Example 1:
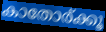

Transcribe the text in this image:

കാതോര്ക്കൂ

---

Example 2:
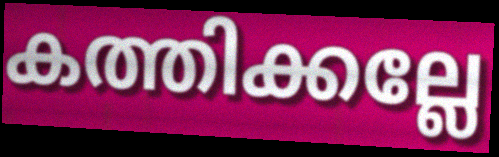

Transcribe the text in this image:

കത്തിക്കല്ലേ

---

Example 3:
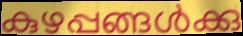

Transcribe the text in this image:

കുഴപ്പങ്ങൾക്കു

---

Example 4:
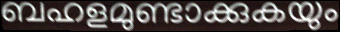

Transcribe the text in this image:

ബഹളമുണ്ടാക്കുകയും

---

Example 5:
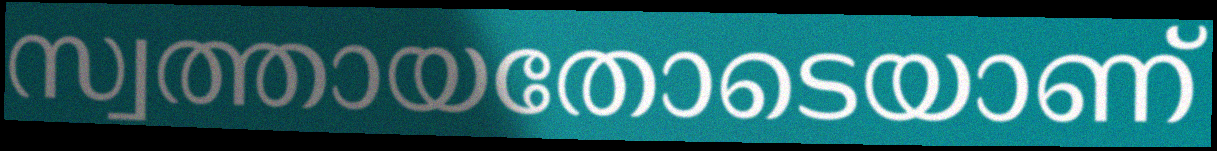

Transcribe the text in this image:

സ്വത്തായതോടെയാണ്